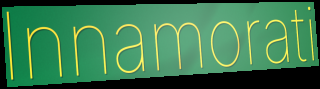
Innamorati